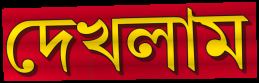
দেখলাম